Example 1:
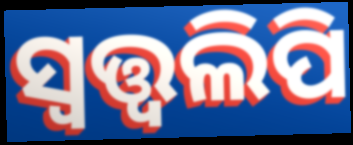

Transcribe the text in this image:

ସ୍ୱତ୍ତ୍ୱଲିପି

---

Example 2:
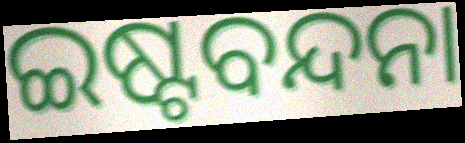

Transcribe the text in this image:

ଇଷ୍ଟବନ୍ଦନା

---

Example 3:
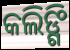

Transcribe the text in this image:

କଲିଙ୍ଗି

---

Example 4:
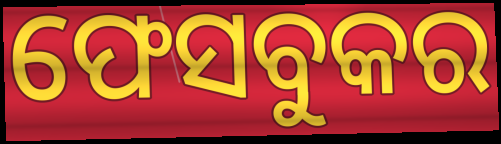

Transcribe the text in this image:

ଫେସବୁକର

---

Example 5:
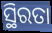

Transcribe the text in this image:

ସ୍ଥିରତା